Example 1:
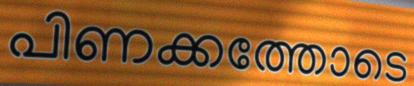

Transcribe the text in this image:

പിണക്കത്തോടെ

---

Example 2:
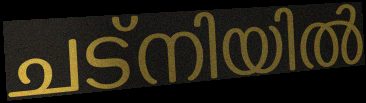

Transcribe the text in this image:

ചട്നിയിൽ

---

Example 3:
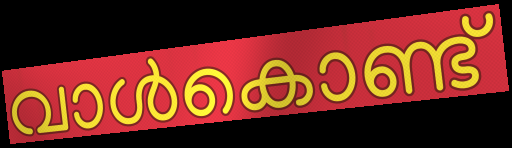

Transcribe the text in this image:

വാൾകൊണ്ട്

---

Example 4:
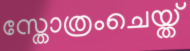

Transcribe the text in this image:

സ്തോത്രംചെയ്ത്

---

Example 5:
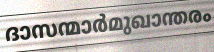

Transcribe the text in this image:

ദാസന്മാർമുഖാന്തരം